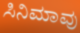
ಸಿನಿಮಾವು